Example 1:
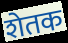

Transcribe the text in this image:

शेतक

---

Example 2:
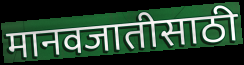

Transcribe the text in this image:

मानवजातीसाठी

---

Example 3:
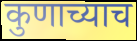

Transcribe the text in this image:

कुणाच्याच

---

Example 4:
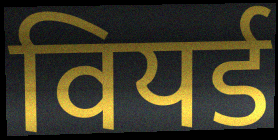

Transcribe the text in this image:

वियर्ड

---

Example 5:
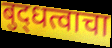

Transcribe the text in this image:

बुद्धत्वाचा